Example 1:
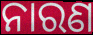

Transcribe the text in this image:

ନାରଣ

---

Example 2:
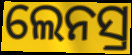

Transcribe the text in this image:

ଲେନସ୍ର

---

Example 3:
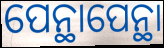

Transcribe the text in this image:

ପେନ୍ଥାପେନ୍ଥା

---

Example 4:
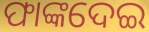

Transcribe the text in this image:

ଫାଙ୍କଦେଇ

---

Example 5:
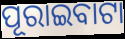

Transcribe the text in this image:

ପୂରାଇବାଟା